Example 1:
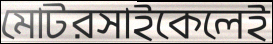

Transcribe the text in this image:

মোটরসাইকেলেই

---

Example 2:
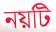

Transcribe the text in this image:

নয়টি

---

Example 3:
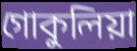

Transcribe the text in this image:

গোকুলিয়া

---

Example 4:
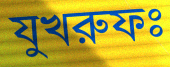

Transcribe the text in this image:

যুখরুফঃ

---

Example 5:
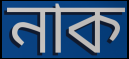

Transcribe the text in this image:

নাক